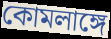
কোমলাঙ্গে